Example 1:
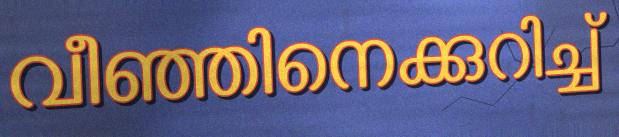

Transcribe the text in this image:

വീഞ്ഞിനെക്കുറിച്ച്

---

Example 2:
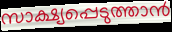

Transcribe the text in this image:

സാക്ഷ്യപ്പെടുത്താൻ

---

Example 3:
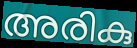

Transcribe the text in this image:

അരികു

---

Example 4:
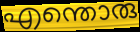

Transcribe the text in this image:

എന്തൊരു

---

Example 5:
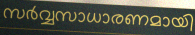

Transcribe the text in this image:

സർവ്വസാധാരണമായി